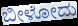
ಬೀಳೋದು